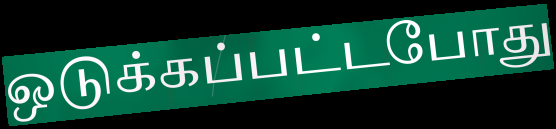
ஒடுக்கப்பட்டபோது